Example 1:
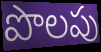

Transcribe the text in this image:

పొలపు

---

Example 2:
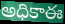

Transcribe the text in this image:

అధికాఈ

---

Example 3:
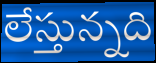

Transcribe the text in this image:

లేస్తున్నది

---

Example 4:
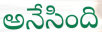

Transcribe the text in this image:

అనేసింది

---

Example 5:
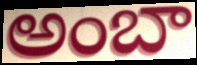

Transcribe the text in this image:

అంబా